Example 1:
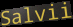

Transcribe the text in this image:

Salvii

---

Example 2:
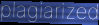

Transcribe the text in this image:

plagiarized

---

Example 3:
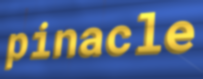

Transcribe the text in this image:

pinacle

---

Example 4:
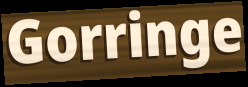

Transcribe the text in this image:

Gorringe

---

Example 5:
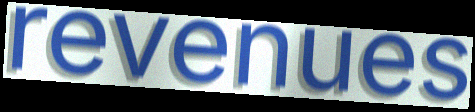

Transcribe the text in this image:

revenues